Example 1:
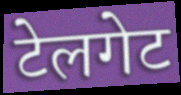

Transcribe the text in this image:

टेलगेट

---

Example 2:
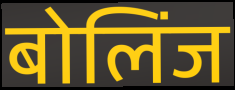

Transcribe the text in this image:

बोलिंज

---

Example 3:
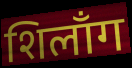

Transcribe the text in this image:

शिलाँग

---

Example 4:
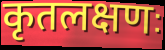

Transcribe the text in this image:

कृतलक्षणः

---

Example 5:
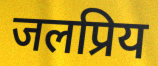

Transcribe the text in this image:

जलप्रिय